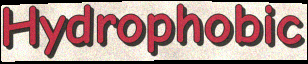
Hydrophobic